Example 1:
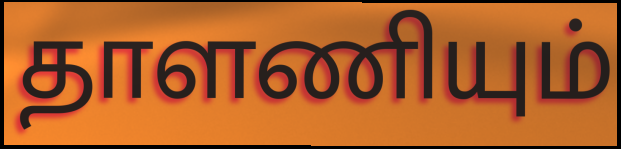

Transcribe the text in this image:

தாளணியும்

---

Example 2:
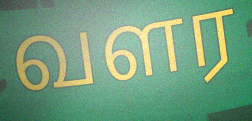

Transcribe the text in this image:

வளர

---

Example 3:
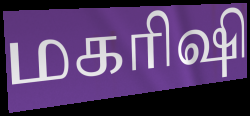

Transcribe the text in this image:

மகரிஷி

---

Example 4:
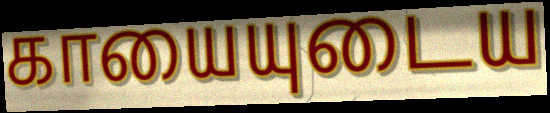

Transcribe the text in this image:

காயையுடைய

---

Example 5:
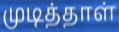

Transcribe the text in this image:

முடித்தாள்